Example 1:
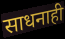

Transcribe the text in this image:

साधनाही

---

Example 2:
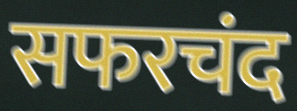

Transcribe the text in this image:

सफरचंद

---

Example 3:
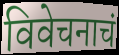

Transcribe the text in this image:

विवेचनाचं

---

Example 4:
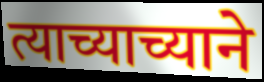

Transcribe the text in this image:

त्याच्याच्याने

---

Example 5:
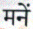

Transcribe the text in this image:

मनें